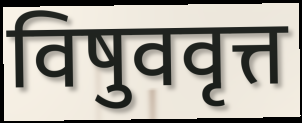
विषुववृत्त